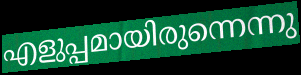
എളുപ്പമായിരുന്നെന്നു